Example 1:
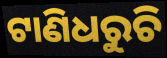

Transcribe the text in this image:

ଟାଣିଧରୁଚି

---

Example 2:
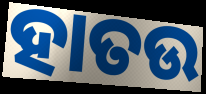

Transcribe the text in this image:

ହାତଉ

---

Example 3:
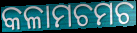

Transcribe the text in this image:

କଳାମଚମଚ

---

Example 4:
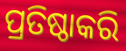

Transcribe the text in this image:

ପ୍ରତିଷ୍ଠାକରି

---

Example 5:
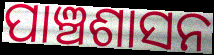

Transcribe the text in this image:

ପାଞ୍ଚଶାସନ